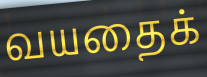
வயதைக்